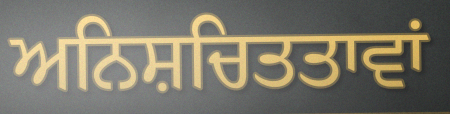
ਅਨਿਸ਼ਚਿਤਤਾਵਾਂ